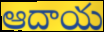
ఆదాయ